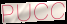
PUCC